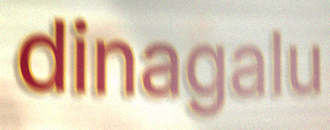
dinagalu